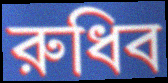
রুধিব